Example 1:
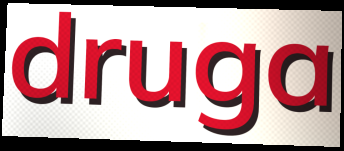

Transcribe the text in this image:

druga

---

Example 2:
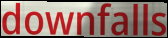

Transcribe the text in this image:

downfalls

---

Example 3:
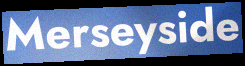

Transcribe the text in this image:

Merseyside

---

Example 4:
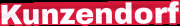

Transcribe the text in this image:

Kunzendorf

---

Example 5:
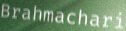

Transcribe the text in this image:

Brahmachari